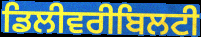
ਡਿਲੀਵਰੀਬਿਲਟੀ